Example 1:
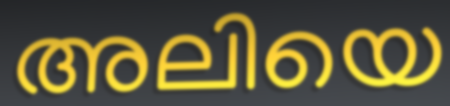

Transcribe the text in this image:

അലിയെ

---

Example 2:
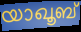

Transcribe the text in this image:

യാഖൂബ്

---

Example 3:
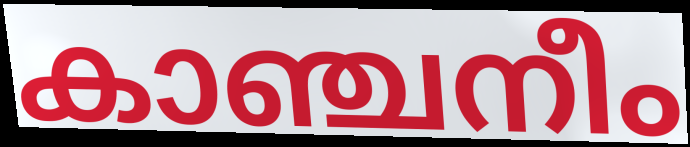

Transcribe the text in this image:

കാഞ്ചനീം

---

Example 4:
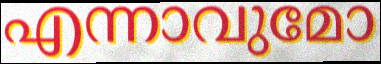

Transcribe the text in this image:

എന്നാവുമോ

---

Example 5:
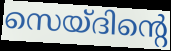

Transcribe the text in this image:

സെയ്ദിന്റെ